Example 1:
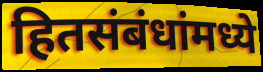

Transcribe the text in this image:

हितसंबंधांमध्ये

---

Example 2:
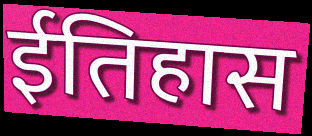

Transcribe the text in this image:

ईतिहास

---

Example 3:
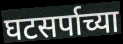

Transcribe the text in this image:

घटसर्पाच्या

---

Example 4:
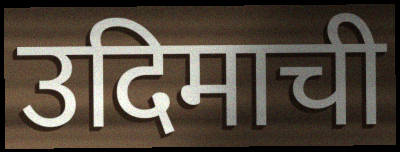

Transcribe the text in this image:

उदिमाची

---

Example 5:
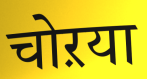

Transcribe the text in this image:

चोऱया